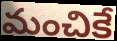
మంచికే